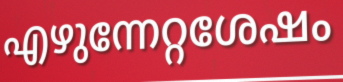
എഴുന്നേറ്റശേഷം